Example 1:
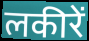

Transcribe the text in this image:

लकीरें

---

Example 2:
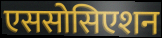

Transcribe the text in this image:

एससोसिएशन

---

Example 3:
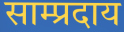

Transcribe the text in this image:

साम्प्रदाय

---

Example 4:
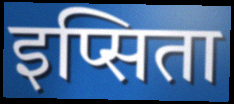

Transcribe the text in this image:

इप्सिता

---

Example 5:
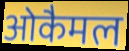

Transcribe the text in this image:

ओकैमल